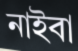
নাইবা